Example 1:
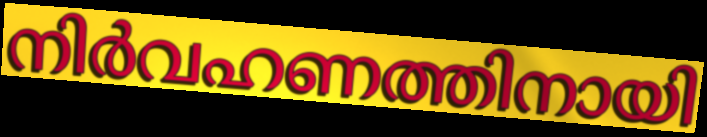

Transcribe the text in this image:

നിർവഹണത്തിനായി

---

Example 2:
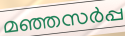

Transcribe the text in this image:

മഞ്ഞസർപ്പ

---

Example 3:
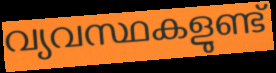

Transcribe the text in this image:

വ്യവസ്ഥകളുണ്ട്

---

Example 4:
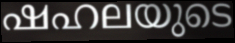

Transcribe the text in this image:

ഷഹലയുടെ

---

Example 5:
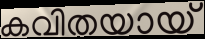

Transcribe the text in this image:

കവിതയായ്